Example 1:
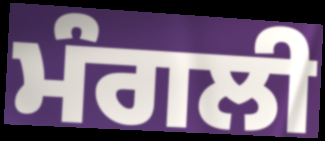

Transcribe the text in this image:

ਮੰਗਲੀ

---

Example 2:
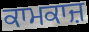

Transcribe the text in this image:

ਕਾਮਕਾਜ਼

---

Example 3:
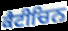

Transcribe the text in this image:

ਕੈਟੀਚਿਨ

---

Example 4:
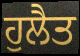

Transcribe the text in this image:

ਹੁਲੈਤ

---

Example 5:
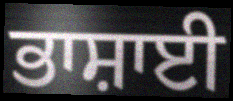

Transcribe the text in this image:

ਭਾਸ਼ਾਈ